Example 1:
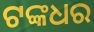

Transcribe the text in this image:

ଟଙ୍କଧର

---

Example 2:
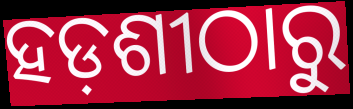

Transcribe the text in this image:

ହଡ଼ଶୀଠାରୁ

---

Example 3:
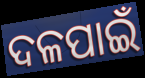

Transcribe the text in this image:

ଦଳପାଇଁ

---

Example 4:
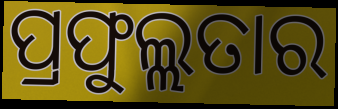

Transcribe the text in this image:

ପ୍ରଫୁଲ୍ଲତାର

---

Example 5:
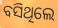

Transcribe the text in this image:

ବସିଥିଲେ